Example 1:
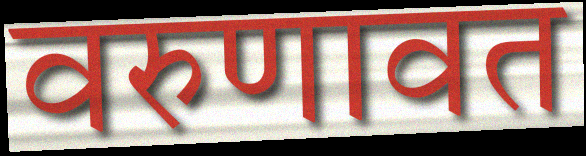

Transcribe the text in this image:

वरुणावत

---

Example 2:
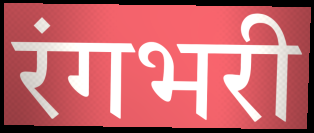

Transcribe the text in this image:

रंगभरी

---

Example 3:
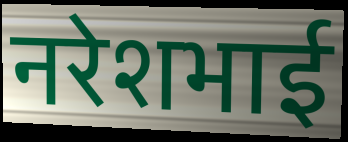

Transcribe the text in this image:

नरेशभाई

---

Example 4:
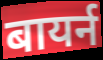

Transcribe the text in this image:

बायर्न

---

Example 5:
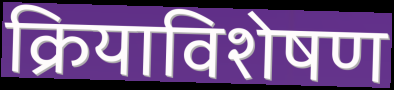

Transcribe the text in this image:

क्रियाविशेषण